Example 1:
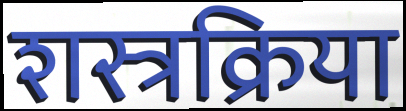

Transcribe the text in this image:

शस्त्रक्रिया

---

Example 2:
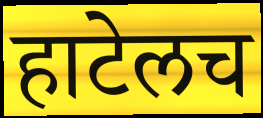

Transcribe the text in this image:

हाटेलच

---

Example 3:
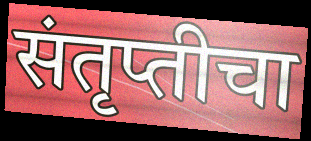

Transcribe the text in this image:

संतृप्तीचा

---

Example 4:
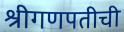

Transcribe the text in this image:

श्रीगणपतीची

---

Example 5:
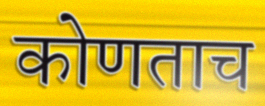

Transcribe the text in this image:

कोणताच